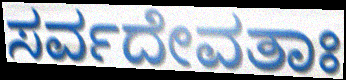
ಸರ್ವದೇವತಾಃ